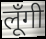
लूँगी